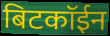
बिटकॉईन